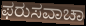
ಫರುಸವಾಚಾ